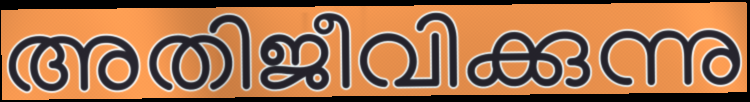
അതിജീവിക്കുന്നു